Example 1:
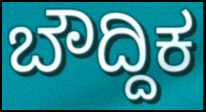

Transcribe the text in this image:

ಬೌದ್ದಿಕ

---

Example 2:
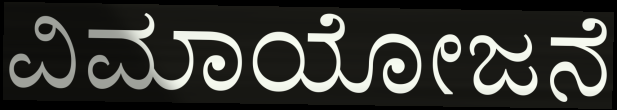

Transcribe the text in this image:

ವಿಮಾಯೋಜನೆ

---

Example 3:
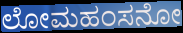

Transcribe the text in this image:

ಲೋಮಹಂಸನೋ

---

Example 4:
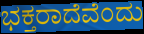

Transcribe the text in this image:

ಭಕ್ತರಾದೆವೆಂದು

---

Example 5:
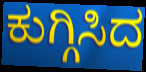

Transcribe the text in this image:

ಕುಗ್ಗಿಸಿದ